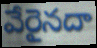
వేరైనదా